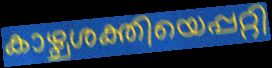
കാഴ്ചശക്തിയെപ്പറ്റി